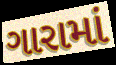
ગારામાં